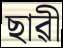
ছাৱী